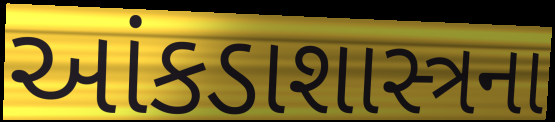
આંકડાશાસ્ત્રના